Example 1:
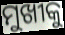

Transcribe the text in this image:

ମୁଖୀକୁ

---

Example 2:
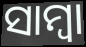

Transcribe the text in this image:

ସାମ୍ବା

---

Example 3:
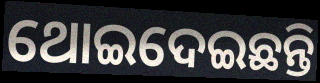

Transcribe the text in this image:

ଥୋଇଦେଇଛନ୍ତି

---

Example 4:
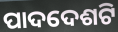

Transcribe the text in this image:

ପାଦଦେଶଟି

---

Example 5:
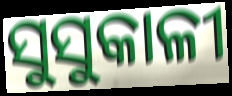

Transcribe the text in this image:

ସୁସୁକାଳୀ